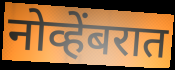
नोव्हेंबरात